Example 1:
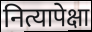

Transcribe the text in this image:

नित्यापेक्षा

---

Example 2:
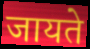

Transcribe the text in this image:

जायते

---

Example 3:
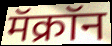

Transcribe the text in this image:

मॅक्रॉन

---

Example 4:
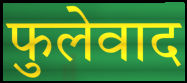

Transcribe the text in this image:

फुलेवाद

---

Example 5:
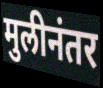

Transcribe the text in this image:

मुलीनंतर